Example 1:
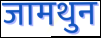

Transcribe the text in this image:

जामथुन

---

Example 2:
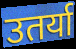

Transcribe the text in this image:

उतर्या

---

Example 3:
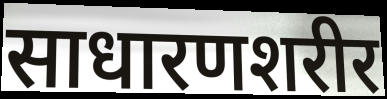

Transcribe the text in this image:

साधारणशरीर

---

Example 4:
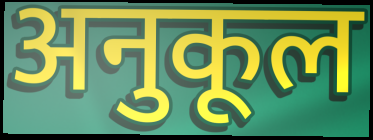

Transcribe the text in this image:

अनुकूल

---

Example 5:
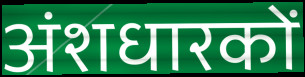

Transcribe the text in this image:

अंशधारकों